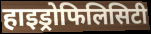
हाइड्रोफिलिसिटी